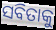
ସବିତାକୁ